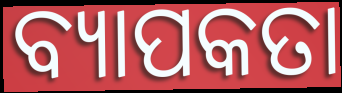
ବ୍ୟାପକତା